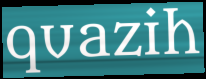
quazih